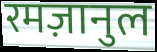
रमज़ानुल